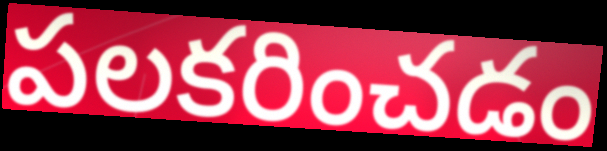
పలకరించడం